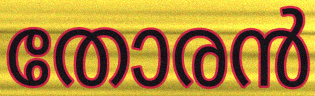
തോരൻ